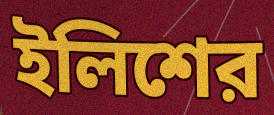
ইলিশের